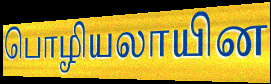
பொழியலாயின